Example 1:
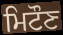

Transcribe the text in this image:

ਮਿਟੌਣ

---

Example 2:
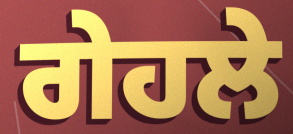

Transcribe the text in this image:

ਗੇਹਲੇ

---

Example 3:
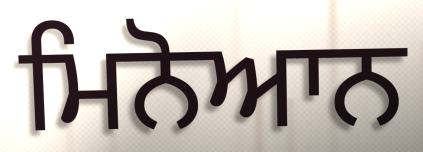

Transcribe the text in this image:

ਮਿਨੋਆਨ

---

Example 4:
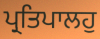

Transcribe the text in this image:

ਪ੍ਰਤਿਪਾਲਹੁ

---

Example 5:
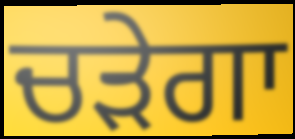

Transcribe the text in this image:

ਚੜੇਗਾ